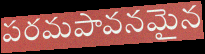
పరమపావనమైన